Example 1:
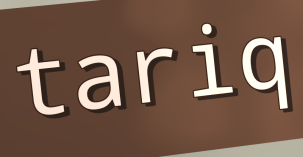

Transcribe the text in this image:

tariq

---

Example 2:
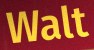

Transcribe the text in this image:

Walt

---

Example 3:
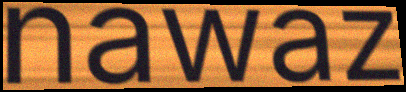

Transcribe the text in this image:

nawaz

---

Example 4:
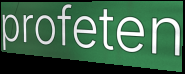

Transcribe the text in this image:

profeten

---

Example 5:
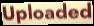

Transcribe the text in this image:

Uploaded